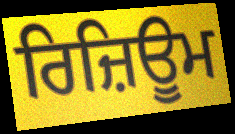
ਰਿਜ਼ਿਊਮ